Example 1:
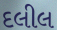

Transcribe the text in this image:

દલીલ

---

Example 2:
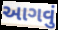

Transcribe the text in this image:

આગવું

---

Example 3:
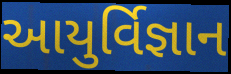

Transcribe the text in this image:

આયુર્વિજ્ઞાન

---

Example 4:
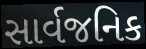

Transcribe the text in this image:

સાર્વજનિક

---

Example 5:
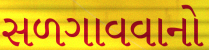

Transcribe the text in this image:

સળગાવવાનો